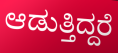
ಆಡುತ್ತಿದ್ದರೆ